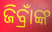
ଜିବ୍ରାଁଙ୍କ